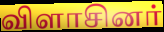
விளாசினர்